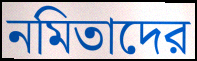
নমিতাদের